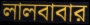
লালবাবার